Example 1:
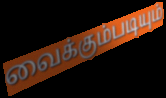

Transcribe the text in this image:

வைக்கும்படியும்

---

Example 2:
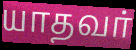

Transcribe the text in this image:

யாதவர்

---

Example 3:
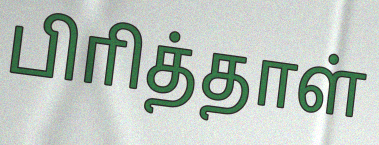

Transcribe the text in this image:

பிரித்தாள்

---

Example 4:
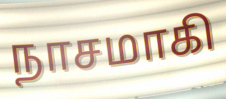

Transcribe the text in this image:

நாசமாகி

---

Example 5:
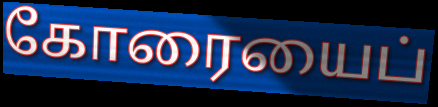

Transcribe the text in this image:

கோரையைப்